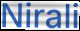
Nirali